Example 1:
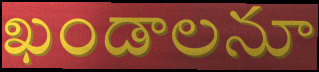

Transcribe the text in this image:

ఖండాలనూ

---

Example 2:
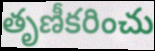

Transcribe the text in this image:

తృణీకరించు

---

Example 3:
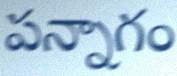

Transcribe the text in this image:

పన్నాగం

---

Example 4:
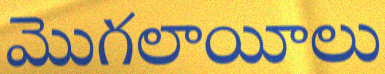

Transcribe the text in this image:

మొగలాయీలు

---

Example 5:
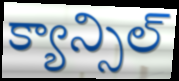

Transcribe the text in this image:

క్యాన్సిల్